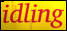
idling